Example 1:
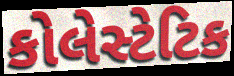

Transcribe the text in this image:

કોલેસ્ટેટિક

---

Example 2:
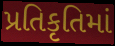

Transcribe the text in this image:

પ્રતિકૃતિમાં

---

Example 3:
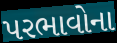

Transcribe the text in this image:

પરભાવોના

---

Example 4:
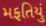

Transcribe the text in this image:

મફતિયું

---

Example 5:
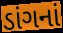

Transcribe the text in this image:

ડાંગનાં